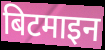
बिटमाइन